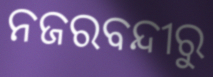
ନଜରବନ୍ଦୀରୁ